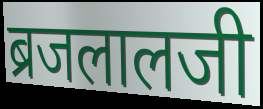
ब्रजलालजी